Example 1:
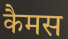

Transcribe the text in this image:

कैमस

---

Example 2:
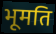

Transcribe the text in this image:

भूमति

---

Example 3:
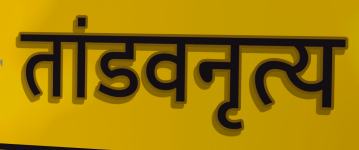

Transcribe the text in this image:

तांडवनृत्य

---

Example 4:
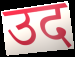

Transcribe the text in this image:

उद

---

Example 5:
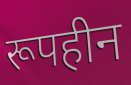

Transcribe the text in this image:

रूपहीन